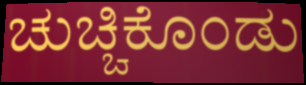
ಚುಚ್ಚಿಕೊಂಡು